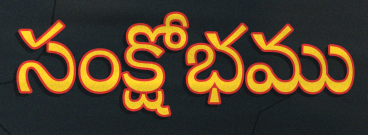
సంక్షోభము